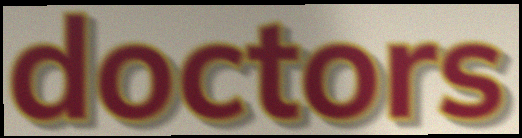
doctors